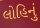
લોહિનું